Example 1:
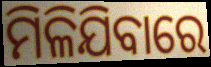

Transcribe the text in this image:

ମିଳିଯିବାରେ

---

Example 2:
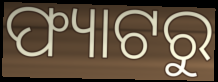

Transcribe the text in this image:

ଫ୍ୟାଟରୁ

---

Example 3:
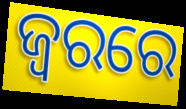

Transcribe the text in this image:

ଜ୍ବରରେ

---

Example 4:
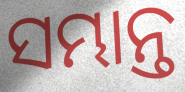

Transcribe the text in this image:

ସମ୍ଭାନ୍ତ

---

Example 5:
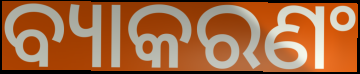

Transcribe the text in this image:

ବ୍ୟାକରଣଂ